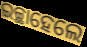
ଇଚ୍ଛାହେଲେ